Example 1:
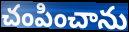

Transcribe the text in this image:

చంపించాను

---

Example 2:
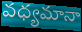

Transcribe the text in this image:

వధ్యమానా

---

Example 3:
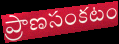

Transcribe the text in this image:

ప్రాణసంకటం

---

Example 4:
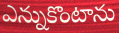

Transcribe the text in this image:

ఎన్నుకొంటాను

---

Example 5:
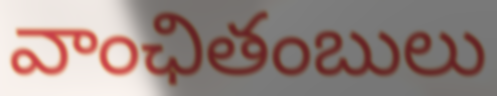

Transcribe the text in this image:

వాంఛితంబులు